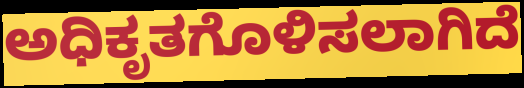
ಅಧಿಕೃತಗೊಳಿಸಲಾಗಿದೆ